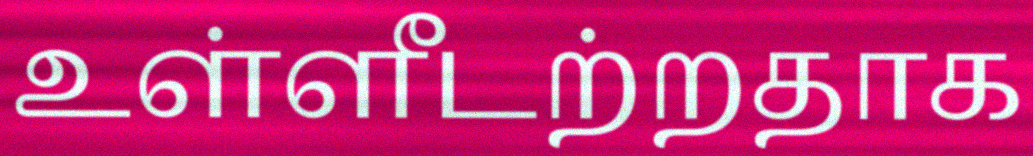
உள்ளீடற்றதாக